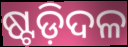
ଷ୍ଟଡ଼ିଦଳ